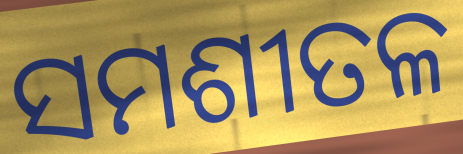
ସମଶୀତଳ